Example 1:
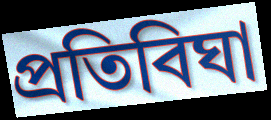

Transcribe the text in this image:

প্রতিবিঘা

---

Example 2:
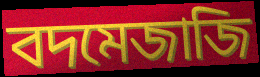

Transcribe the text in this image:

বদমেজাজি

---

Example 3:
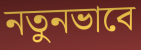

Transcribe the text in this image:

নতুনভাবে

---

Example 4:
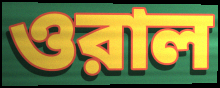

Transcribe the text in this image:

ওরাল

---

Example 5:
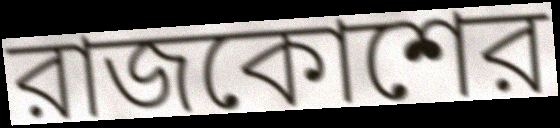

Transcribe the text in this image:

রাজকোশের